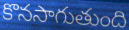
కొనసాగుతుంది